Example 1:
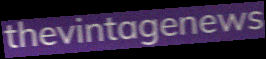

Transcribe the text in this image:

thevintagenews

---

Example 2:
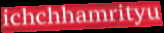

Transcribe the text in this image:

ichchhamrityu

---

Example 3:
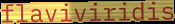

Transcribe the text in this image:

flaviviridis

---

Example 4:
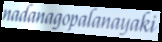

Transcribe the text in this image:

nadanagopalanayaki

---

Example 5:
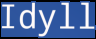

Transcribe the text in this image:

Idyll